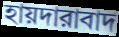
হায়দারাবাদ